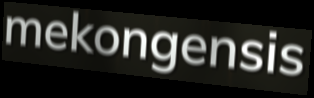
mekongensis